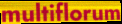
multiflorum